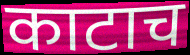
काटाच